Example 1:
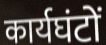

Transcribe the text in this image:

कार्यघंटों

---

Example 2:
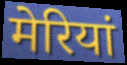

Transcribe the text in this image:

मेरियां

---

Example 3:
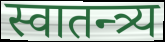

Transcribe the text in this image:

स्वातन्त्र्य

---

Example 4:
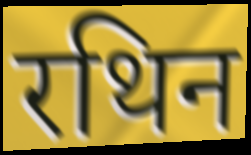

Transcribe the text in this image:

रथिन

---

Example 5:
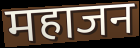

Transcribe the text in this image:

महाजन